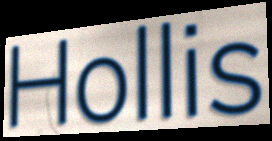
Hollis